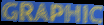
GRAPHIC